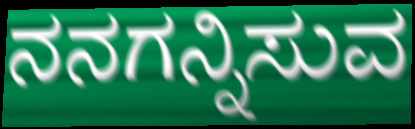
ನನಗನ್ನಿಸುವ